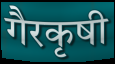
गैरकृषी